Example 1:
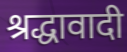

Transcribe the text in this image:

श्रद्धावादी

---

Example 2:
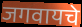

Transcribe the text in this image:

जगवायचे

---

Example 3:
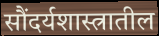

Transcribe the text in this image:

सौंदर्यशास्त्रातील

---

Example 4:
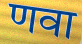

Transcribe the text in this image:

णवा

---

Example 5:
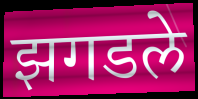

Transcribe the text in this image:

झगडले